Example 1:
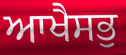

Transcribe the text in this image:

ਆਖੈਸਭੁ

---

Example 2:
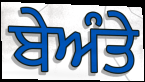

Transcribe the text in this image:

ਬੇਅੰਤੇ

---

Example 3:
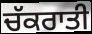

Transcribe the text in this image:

ਚੱਕਰਾਤੀ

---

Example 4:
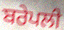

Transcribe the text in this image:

ਬਰੇਪਲੀ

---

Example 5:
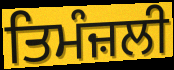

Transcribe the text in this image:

ਤਿਮੰਜ਼ਲੀ